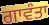
ਗਾਵੰਤਾ